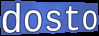
dosto